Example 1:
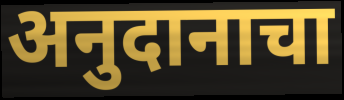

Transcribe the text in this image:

अनुदानाचा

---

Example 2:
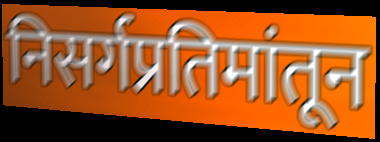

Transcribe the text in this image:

निसर्गप्रतिमांतून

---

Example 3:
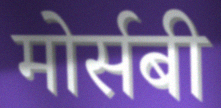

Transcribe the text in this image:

मोर्सबी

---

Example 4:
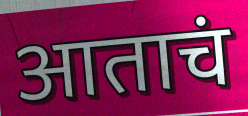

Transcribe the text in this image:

आताचं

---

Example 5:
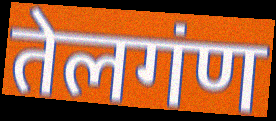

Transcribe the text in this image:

तेलगंण